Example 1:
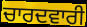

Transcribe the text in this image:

ਚਾਰਦਵਾਰੀ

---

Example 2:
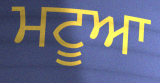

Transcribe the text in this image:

ਮਟੂਆ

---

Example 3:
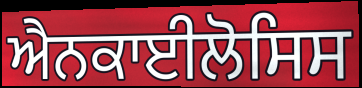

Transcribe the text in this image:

ਐਨਕਾਈਲੋਸਿਸ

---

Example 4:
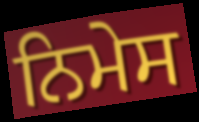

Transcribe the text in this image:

ਨਿਮੇਸ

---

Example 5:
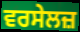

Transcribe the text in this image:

ਵਰਸੇਲਜ਼